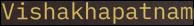
Vishakhapatnam